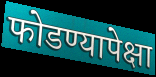
फोडण्यापेक्षा